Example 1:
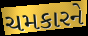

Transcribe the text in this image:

ચમકારને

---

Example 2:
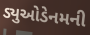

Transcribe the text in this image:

ડ્યુઓડેનમની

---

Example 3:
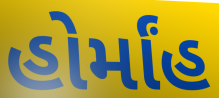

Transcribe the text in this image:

હોર્માંહ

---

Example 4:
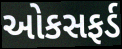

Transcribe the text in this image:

ઓકસફર્ડ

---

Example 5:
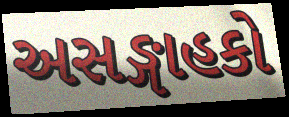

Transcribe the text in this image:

અસઙ્ગાહકો